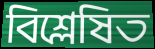
বিশ্লেষিত